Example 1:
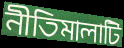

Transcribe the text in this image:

নীতিমালাটি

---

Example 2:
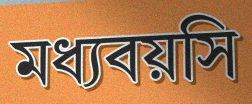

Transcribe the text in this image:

মধ্যবয়সি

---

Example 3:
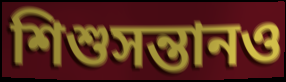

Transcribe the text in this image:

শিশুসন্তানও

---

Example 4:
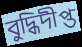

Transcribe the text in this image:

বুদ্ধিদীপ্ত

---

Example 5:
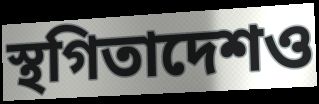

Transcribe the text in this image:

স্থগিতাদেশও